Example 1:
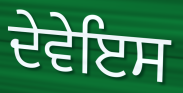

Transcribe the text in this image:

ਦੇਵੇਇਸ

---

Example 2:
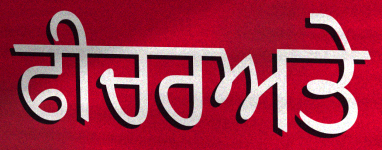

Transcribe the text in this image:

ਫੀਚਰਅਤੇ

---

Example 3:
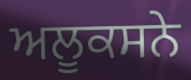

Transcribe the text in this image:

ਅਲੂਕਸਨੇ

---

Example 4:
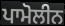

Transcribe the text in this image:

ਪਾਮੋਲੀਨ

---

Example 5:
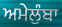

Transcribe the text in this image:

ਅਮੇਲੁੰਬਾ